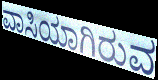
ವಾಸಿಯಾಗಿರುವ